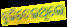
ବୁଜିଦେଇଥିଲେ